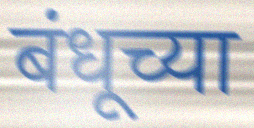
बंधूच्या